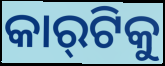
କାର୍‍ଟିକୁ